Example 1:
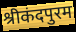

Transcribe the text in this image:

श्रीकंदपुरम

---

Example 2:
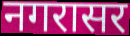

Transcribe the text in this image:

नगरासर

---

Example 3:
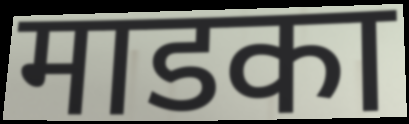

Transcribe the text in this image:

माडका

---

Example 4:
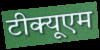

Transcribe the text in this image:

टीक्यूएम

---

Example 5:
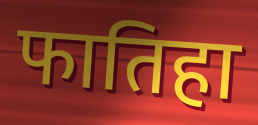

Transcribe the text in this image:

फातिहा